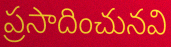
ప్రసాదించునవి